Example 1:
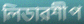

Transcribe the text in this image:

লিডারশীপ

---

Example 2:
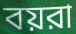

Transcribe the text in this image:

বয়রা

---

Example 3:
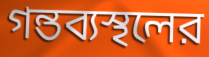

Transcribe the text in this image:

গন্তব্যস্থলের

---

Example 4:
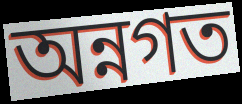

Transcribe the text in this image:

অন্নগত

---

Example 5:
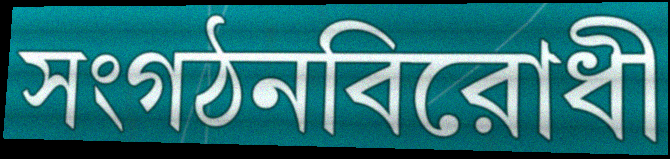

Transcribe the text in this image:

সংগঠনবিরোধী